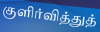
குளிர்வித்துத்